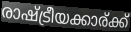
രാഷ്ട്രീയക്കാര്ക്ക്